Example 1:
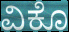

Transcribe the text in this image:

ವಿಕೊ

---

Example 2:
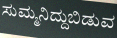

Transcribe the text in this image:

ಸುಮ್ಮನಿದ್ದುಬಿಡುವ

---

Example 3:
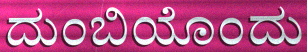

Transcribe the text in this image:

ದುಂಬಿಯೊಂದು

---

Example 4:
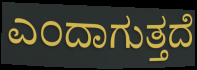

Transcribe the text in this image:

ಎಂದಾಗುತ್ತದೆ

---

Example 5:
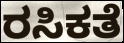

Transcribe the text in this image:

ರಸಿಕತೆ